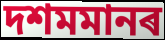
দশমমানৰ